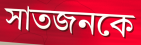
সাতজনকে